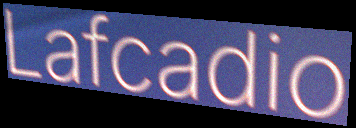
Lafcadio